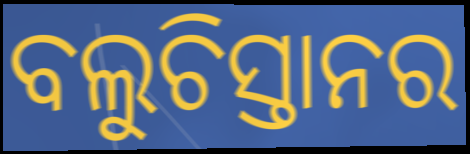
ବଲୁଚିସ୍ତାନର